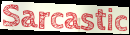
Sarcastic